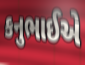
કનુભાઈએ